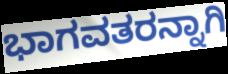
ಭಾಗವತರನ್ನಾಗಿ